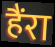
हैंरा